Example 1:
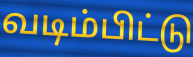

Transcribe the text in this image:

வடிம்பிட்டு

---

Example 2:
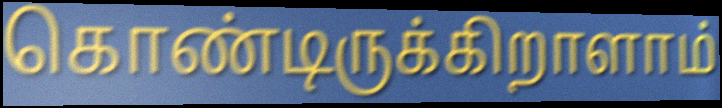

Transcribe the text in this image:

கொண்டிருக்கிறாளாம்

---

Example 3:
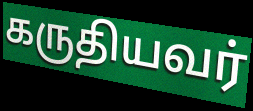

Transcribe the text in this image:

கருதியவர்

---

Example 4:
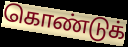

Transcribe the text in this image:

கொண்டுக்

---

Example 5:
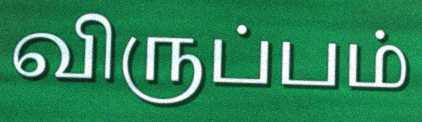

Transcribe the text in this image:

விருப்பம்